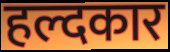
हल्दकार